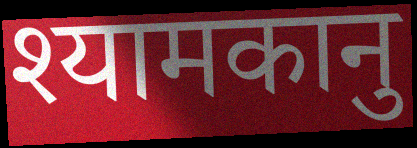
श्यामकानु